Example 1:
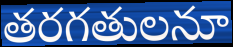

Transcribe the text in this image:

తరగతులనూ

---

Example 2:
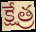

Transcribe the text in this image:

క్షేత్ర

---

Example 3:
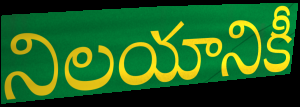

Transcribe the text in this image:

నిలయానికీ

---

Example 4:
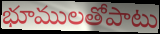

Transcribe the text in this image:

భూములతోపాటు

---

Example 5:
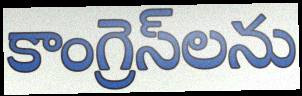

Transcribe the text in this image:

కాంగ్రెస్‌లను